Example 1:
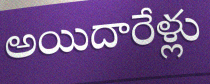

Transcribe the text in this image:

అయిదారేళ్లు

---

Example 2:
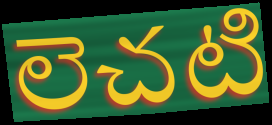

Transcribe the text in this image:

లెచటి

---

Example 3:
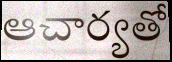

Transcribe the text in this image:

ఆచార్యతో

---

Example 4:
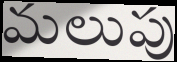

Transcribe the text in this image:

మలుపు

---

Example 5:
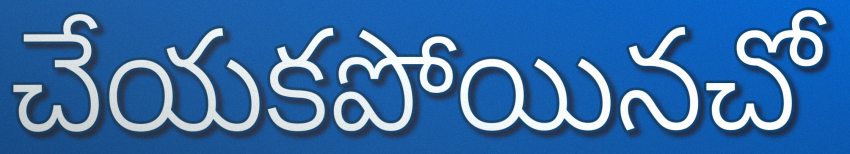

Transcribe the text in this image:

చేయకపోయినచో